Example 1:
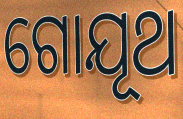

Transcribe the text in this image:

ଗୋଯୂଥ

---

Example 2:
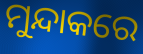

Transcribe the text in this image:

ମୁନ୍ଦାକରେ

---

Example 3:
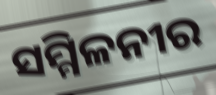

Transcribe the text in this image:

ସମ୍ମିଳନୀର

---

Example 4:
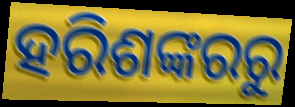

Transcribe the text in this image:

ହରିଶଙ୍କରରୁ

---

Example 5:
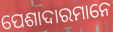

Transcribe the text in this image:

ପେଶାଦାରମାନେ